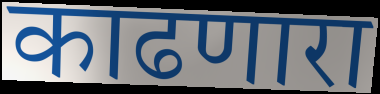
काढणारा